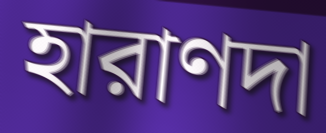
হারাণদা